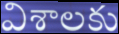
విశాలకు